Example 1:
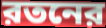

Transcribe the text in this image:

রতনের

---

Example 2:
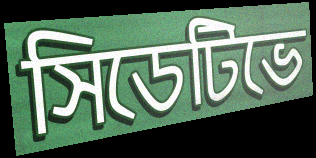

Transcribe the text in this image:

সিডেটিভে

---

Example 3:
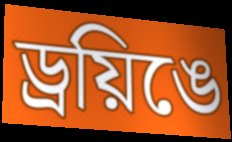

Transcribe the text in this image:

ড্রয়িঙে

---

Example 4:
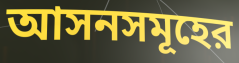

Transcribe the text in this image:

আসনসমূহের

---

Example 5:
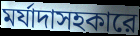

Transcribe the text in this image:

মর্যাদাসহকারে